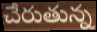
చేరుతున్న